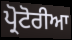
ਪ੍ਰੋਟੋਰੀਆ